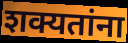
शक्यतांना